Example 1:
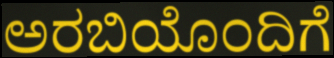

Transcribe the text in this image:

ಅರಬಿಯೊಂದಿಗೆ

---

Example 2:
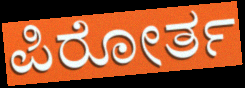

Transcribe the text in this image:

ಪಿರೋರ್ತ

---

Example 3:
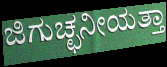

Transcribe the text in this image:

ಜಿಗುಚ್ಛನೀಯತ್ತಾ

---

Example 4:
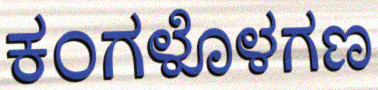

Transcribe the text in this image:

ಕಂಗಳೊಳಗಣ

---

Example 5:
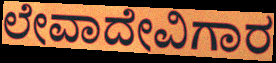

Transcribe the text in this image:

ಲೇವಾದೇವಿಗಾರ